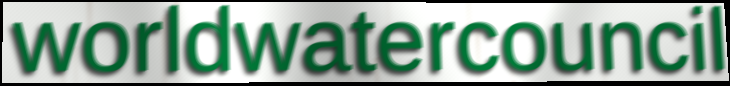
worldwatercouncil